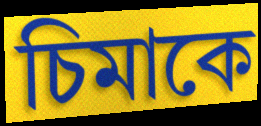
চিমাকে